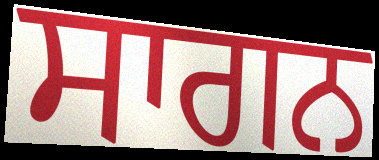
ਸਾਗਨ